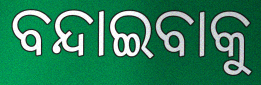
ବନ୍ଦାଇବାକୁ